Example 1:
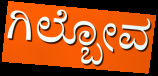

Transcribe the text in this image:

ಗಿಲ್ಬೋವ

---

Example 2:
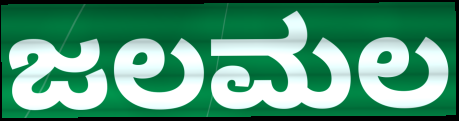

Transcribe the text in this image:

ಜಲಮಲ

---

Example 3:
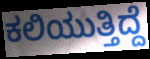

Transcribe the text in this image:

ಕಲಿಯುತ್ತಿದ್ದೆ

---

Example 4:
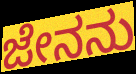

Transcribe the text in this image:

ಜೇನನು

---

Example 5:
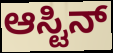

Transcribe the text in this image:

ಆಸ್ಟಿನ್